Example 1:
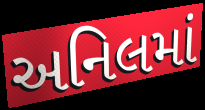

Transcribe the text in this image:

અનિલમાં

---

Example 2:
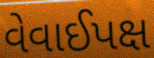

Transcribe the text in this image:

વેવાઈપક્ષ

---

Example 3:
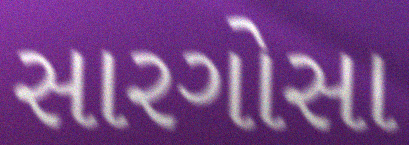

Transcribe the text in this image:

સારગોસા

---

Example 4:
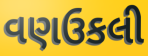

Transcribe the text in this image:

વણઉકલી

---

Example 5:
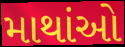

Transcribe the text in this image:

માથાંઓ